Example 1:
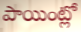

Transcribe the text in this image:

పాయింట్లో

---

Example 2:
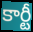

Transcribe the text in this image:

కార్టీ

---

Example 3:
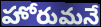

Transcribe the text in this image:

హోరుమనే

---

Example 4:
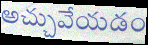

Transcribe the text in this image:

అచ్చువేయడం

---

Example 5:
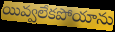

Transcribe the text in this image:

యివ్వలేకపోయాను